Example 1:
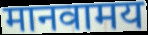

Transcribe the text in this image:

मानवामय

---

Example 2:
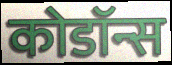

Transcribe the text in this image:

कोडॉन्स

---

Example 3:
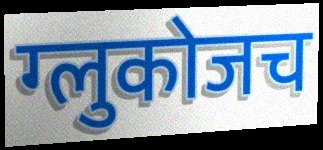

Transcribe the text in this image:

ग्लुकोजच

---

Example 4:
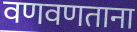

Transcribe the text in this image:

वणवणताना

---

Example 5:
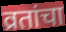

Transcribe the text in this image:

व्रतांचा